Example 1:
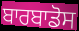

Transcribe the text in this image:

ਬਾਰਬਾਡੋਸ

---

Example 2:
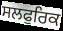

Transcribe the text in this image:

ਸਲਫੁਰਿਕ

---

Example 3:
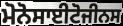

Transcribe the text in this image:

ਮੋਨੋਸਾਈਟੋਜੀਨਸ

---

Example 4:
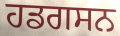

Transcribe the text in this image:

ਹਡਗਸਨ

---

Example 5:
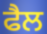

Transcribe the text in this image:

ਫੈਲ